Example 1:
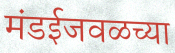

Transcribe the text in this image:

मंडईजवळच्या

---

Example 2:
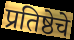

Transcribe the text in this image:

प्रतिष्ठेचे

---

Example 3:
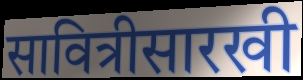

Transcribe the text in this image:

सावित्रीसारखी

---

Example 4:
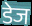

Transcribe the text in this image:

डेज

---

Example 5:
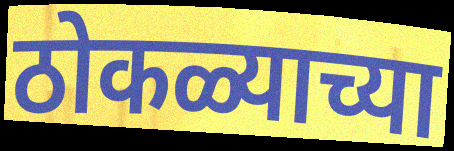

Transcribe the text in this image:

ठोकळ्याच्या